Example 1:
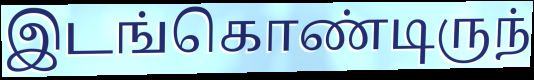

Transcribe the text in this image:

இடங்கொண்டிருந்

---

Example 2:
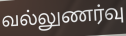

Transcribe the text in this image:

வல்லுணர்வு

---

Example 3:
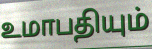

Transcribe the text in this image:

உமாபதியும்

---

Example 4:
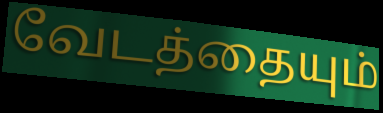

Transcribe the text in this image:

வேடத்தையும்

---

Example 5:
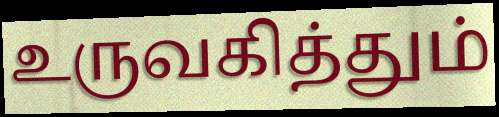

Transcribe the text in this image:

உருவகித்தும்